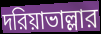
দরিয়াভাল্লার